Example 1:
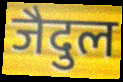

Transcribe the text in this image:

जैदुल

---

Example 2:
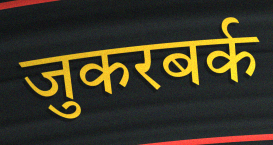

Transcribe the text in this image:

जुकरबर्क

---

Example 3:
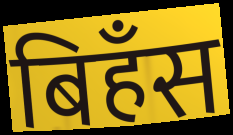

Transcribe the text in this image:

बिहँस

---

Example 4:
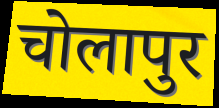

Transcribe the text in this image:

चोलापुर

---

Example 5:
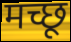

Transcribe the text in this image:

मच्छू